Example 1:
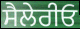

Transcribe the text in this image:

ਸੈਲੇਰੀਓ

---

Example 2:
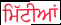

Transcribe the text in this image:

ਮਿੱਟੀਆਂ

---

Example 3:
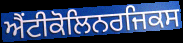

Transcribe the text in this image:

ਐਂਟੀਕੋਲਿਨਰਜਿਕਸ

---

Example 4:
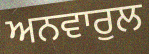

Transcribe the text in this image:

ਅਨਵਾਰੁਲ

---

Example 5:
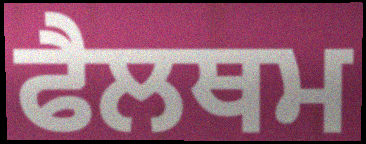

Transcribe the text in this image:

ਫੈਲਥਮ